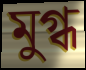
মুগ্ধ